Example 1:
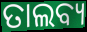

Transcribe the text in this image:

ତାଲବ୍ୟ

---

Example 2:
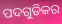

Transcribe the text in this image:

ପଦଗୁଡିକର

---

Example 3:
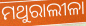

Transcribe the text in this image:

ମଥୁରାଲୀଳା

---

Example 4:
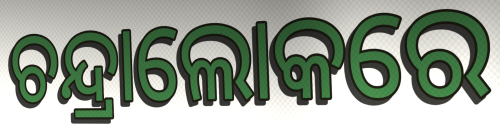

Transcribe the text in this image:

ଚନ୍ଦ୍ରାଲୋକରେ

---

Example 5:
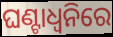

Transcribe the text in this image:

ଘଣ୍ଟାଧ୍ୱନିରେ